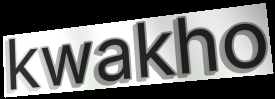
kwakho